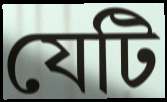
যেটি